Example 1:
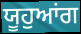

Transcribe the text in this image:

ਯੂਹੁਆਂਗ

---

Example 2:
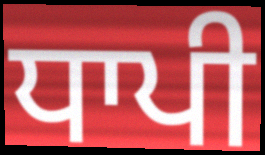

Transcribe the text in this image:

ਧਾਪੀ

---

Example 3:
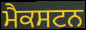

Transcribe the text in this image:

ਮੈਕਸਟਨ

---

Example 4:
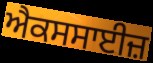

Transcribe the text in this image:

ਐਕਸਸਾਈਜ਼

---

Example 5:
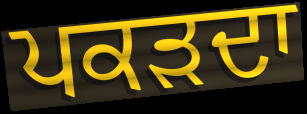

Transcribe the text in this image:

ਪਕੜਦਾ